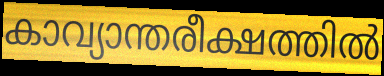
കാവ്യാന്തരീക്ഷത്തിൽ